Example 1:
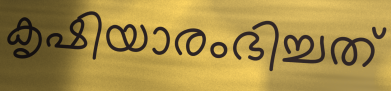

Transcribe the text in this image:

കൃഷിയാരംഭിച്ചത്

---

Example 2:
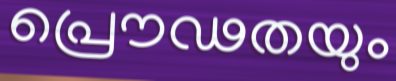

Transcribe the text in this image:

പ്രൌഢതയും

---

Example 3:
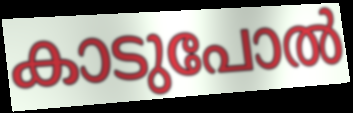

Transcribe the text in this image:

കാടുപോൽ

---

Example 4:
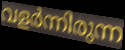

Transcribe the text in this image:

വളർന്നിരുന്ന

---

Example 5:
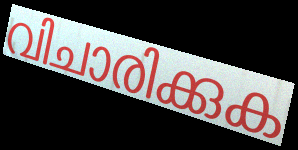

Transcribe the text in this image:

വിചാരിക്കുക